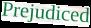
Prejudiced